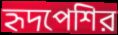
হৃদপেশির